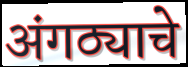
अंगठ्याचे